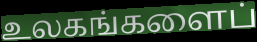
உலகங்களைப்